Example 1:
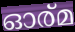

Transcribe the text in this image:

ഓര്മ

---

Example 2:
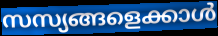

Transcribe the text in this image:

സസ്യങ്ങളെക്കാൾ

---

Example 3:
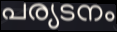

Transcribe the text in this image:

പര്യടനം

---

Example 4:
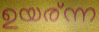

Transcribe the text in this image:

ഉയര്ന്ന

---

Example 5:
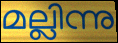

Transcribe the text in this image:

മല്ലിന്നു